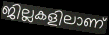
ജില്ലകളിലാണ്